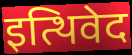
इत्थिवेद